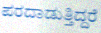
ಪರದಾಡುತ್ತಿದ್ದರೆ